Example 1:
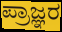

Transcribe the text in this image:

ಪ್ರಾಜ್ಞರ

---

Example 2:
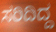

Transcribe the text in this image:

ಸರಿದಿದ್ದ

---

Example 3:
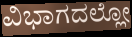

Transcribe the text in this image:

ವಿಭಾಗದಲ್ಲೋ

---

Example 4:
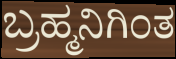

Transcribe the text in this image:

ಬ್ರಹ್ಮನಿಗಿಂತ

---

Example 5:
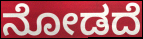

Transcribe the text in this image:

ನೋಡದೆ